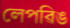
লেপৱিঙ